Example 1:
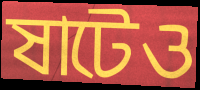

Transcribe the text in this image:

ষাটেও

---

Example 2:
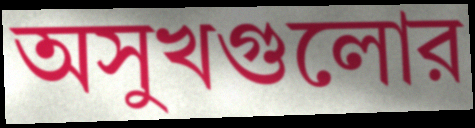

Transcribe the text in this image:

অসুখগুলোর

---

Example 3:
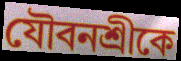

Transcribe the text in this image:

যৌবনশ্রীকে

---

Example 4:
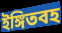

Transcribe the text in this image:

ইঙ্গিতবহ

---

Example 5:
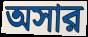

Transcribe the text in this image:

অসার